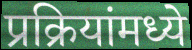
प्रक्रियांमध्ये